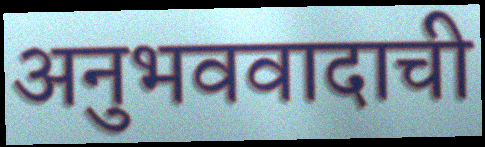
अनुभववादाची